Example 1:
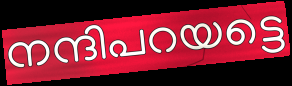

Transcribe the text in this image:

നന്ദിപറയട്ടെ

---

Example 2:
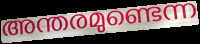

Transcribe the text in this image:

അന്തരമുണ്ടെന്ന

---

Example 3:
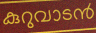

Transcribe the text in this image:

കുറുവാടൻ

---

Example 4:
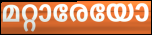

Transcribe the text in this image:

മറ്റാരേയോ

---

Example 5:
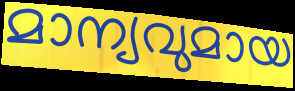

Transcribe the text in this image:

മാന്യവുമായ